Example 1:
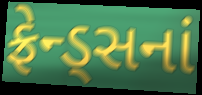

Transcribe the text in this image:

ફ્રેન્ડ્સનાં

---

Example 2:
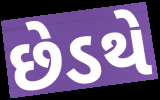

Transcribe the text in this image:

છેડથે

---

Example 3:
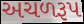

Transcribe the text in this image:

અચળરૂપ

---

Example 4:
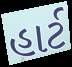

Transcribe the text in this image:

હાર્ટ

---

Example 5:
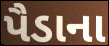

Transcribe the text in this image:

પૈડાના